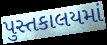
પુસ્તકાલયમાં